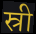
स्री